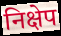
निक्षेप